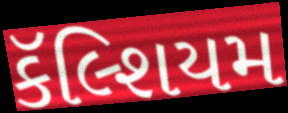
કૅલ્શિયમ